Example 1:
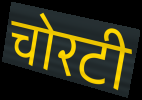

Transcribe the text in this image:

चोरटी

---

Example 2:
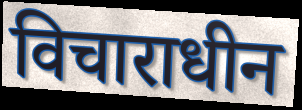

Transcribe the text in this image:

विचाराधीन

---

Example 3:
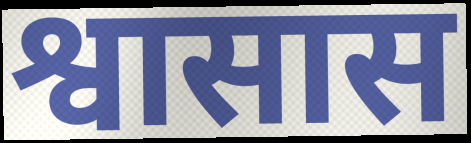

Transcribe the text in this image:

श्वासास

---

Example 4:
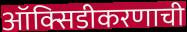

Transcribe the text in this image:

ऑक्सिडीकरणाची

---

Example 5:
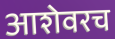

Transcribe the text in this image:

आशेवरच